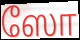
ஸோ